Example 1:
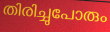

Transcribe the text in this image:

തിരിച്ചുപോരും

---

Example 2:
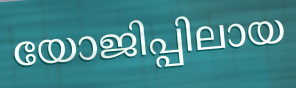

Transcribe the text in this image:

യോജിപ്പിലായ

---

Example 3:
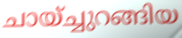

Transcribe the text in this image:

ചായ്ച്ചുറങ്ങിയ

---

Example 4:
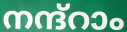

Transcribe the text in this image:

നന്ദ്റാം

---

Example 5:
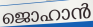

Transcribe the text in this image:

ജൊഹാൻ